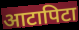
आटापिटा